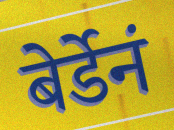
बेर्डेनं